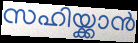
സഹിയ്ക്കാൻ